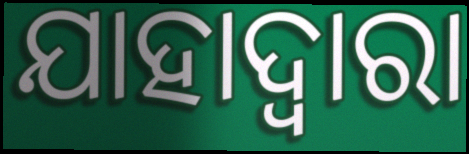
ଯାହାଦ୍ୱାରା